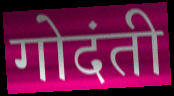
गोदंती